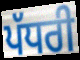
ਪੱਧਰੀ